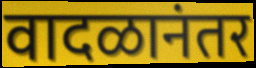
वादळानंतर